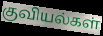
குவியல்கள்